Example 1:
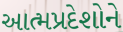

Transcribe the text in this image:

આત્મપ્રદેશોને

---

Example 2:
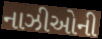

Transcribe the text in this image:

નાઝીઓની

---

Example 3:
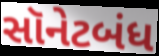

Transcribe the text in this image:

સૉનેટબંધ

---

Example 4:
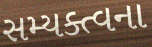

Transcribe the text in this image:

સમ્યક્ત્વના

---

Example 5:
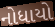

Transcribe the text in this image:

નોધાયો